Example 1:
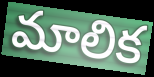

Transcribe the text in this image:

మాలిక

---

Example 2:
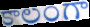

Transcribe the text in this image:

కాలంగా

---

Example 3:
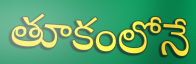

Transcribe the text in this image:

తూకంలోనే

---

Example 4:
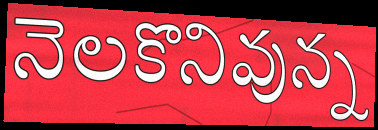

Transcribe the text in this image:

నెలకొనివున్న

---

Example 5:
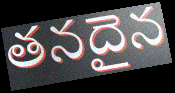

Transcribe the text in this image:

తనదైన